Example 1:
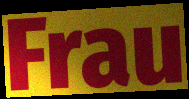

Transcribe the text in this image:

Frau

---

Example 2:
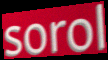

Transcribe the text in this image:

sorol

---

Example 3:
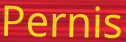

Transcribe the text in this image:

Pernis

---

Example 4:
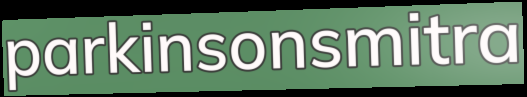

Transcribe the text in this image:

parkinsonsmitra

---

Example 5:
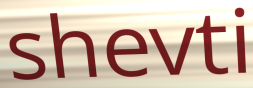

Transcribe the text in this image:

shevti